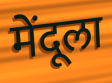
मेंदूला